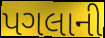
પગલાની